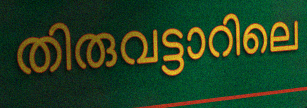
തിരുവട്ടാറിലെ